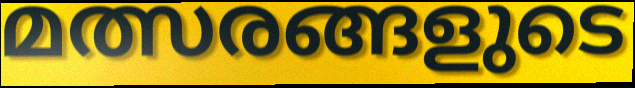
മത്സരങ്ങളുടെ